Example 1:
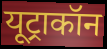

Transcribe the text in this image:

यूट्राकॉन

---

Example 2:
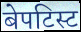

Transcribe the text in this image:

बेपटिस्ट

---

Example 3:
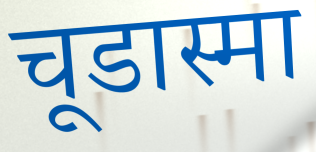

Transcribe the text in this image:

चूडास्मा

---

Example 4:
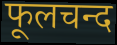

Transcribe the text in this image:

फूलचन्द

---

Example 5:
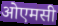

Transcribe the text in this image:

ओएमसी